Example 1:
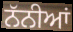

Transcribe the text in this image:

ਨੱਨੀਆਂ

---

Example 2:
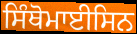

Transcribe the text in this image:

ਸਿੰਥੋਮਾਈਸਿਨ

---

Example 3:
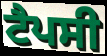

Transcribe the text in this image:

ਟੈਪਸੀ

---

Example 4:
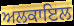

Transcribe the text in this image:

ਅਲਕਾਇਲ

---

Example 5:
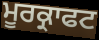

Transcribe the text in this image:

ਮੂਰਕ੍ਰਾਫਟ